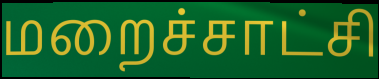
மறைச்சாட்சி